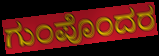
ಗುಂಪೊಂದರ